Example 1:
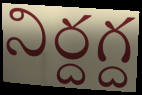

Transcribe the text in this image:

నిర్దగ్ద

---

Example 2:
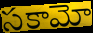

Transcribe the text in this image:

సకామో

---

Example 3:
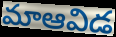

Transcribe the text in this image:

మాఆవిడ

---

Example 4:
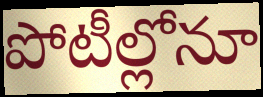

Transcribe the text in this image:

పోటీల్లోనూ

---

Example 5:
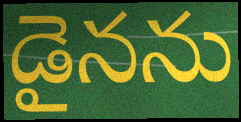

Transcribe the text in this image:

డైనను